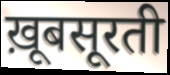
ख़ूबसूरती